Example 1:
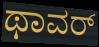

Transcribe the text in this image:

ಥಾವರ್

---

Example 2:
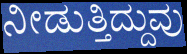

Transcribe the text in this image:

ನೀಡುತ್ತಿದ್ದುವು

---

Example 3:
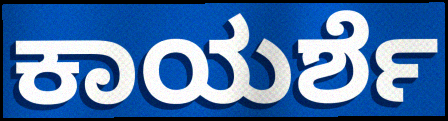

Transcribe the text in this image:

ಕಾಯರ್ಶೆ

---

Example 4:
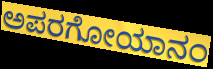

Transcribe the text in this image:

ಅಪರಗೋಯಾನಂ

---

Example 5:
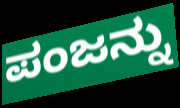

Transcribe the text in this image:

ಪಂಜನ್ನು